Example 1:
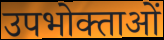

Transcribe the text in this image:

उपभोक्ताओं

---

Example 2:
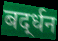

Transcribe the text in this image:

बर्द्धन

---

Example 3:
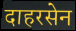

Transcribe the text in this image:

दाहरसेन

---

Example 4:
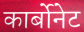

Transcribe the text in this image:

कार्बोनेट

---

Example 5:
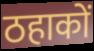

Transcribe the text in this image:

ठहाकों